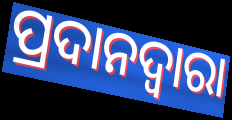
ପ୍ରଦାନଦ୍ୱାରା